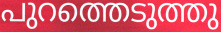
പുറത്തെടുത്തു